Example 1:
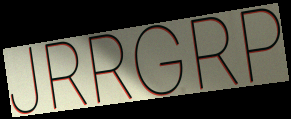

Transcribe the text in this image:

JRRGRP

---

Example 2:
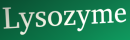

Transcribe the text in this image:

Lysozyme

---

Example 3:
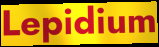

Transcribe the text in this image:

Lepidium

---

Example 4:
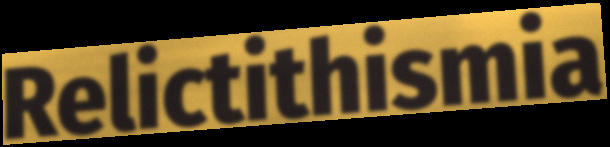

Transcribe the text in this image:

Relictithismia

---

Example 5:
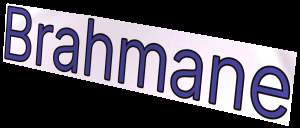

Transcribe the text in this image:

Brahmane